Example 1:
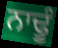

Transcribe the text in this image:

ਨਾਢੂੰ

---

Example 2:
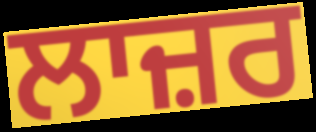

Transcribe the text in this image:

ਲਾਜ਼ਰ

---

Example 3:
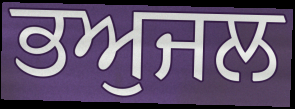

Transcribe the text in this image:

ਭਅੁਜਲ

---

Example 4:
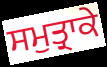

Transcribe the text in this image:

ਸਮੁਤ੍ਰਾਕੇ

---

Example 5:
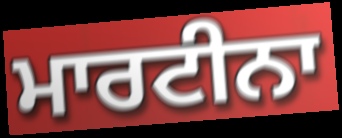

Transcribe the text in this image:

ਮਾਰਟੀਨਾ